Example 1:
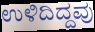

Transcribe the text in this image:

ಉಳಿದಿದ್ದವು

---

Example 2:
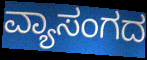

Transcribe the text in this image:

ವ್ಯಾಸಂಗದ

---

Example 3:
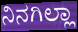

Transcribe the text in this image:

ನಿನಗಿಲ್ಲಾ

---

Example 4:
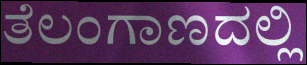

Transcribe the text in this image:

ತೆಲಂಗಾಣದಲ್ಲಿ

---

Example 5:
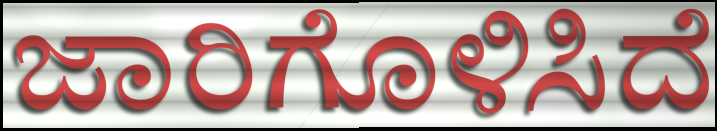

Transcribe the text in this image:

ಜಾರಿಗೊಳಿಸಿದೆ